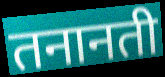
तनानती